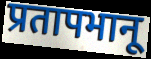
प्रतापभानू